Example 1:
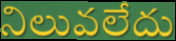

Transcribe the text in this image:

నిలువలేదు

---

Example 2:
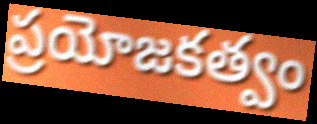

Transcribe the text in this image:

ప్రయోజకత్వం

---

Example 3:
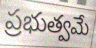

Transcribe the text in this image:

ప్రభుత్వమే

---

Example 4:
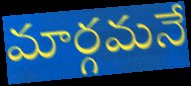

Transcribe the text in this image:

మార్గమనే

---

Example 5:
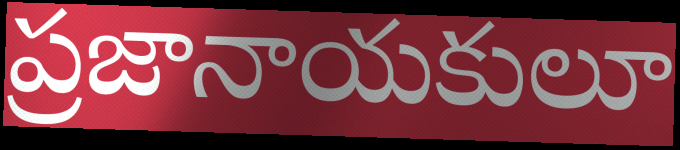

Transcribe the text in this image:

ప్రజానాయకులూ